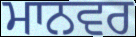
ਮਾਨਵਰ